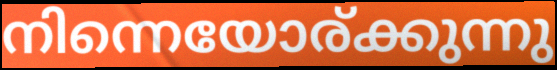
നിന്നെയോര്ക്കുന്നു